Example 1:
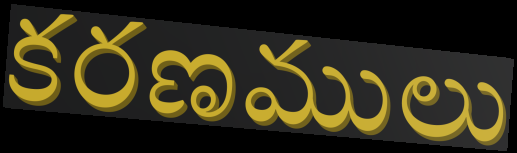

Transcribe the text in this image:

కరణములు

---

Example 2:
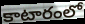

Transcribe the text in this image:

కాటారంలో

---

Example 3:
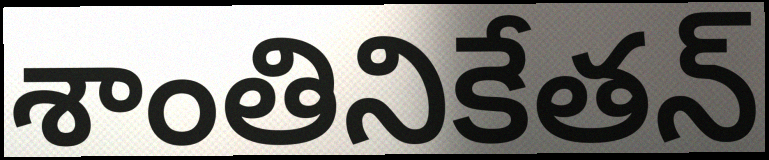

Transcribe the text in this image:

శాంతినికేతన్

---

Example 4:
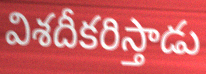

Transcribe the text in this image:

విశదీకరిస్తాడు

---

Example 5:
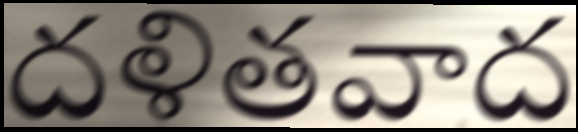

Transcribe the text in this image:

దళితవాద